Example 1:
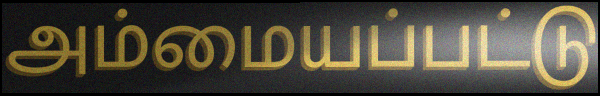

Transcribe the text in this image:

அம்மையப்பட்டு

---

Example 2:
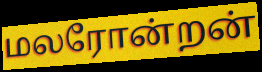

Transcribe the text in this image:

மலரோன்றன்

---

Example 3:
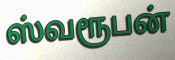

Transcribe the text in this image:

ஸ்வரூபன்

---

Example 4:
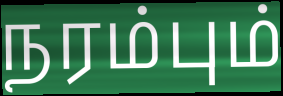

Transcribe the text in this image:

நரம்பும்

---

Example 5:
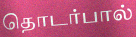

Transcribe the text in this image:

தொடர்பால்